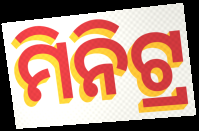
ମିନିଟ୍ର